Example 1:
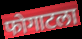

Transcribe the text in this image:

फोगाटला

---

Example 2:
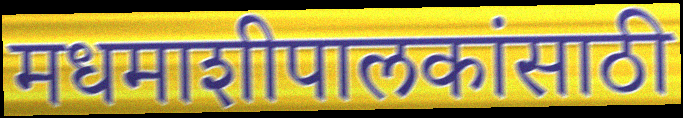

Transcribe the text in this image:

मधमाशीपालकांसाठी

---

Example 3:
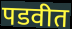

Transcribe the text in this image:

पडवीत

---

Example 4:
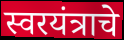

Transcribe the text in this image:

स्वरयंत्राचे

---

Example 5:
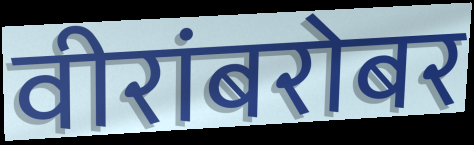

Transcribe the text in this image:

वीरांबरोबर